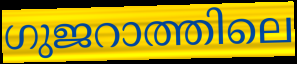
ഗുജറാത്തിലെ